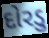
દોરડુ